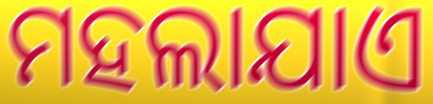
ମହଲାଯାଏ